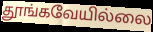
தூங்கவேயில்லை